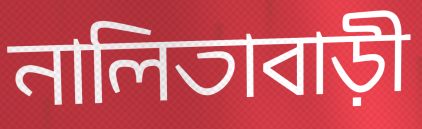
নালিতাবাড়ী